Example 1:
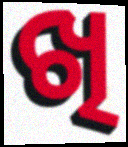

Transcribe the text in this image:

ଖି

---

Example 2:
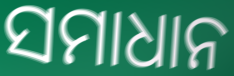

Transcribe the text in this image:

ସମାଧାନ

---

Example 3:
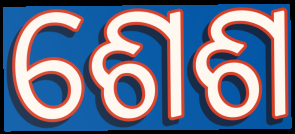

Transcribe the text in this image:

ଶେଶ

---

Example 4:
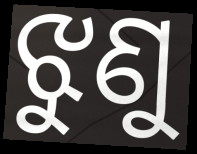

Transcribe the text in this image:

ଝୁଣୁ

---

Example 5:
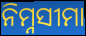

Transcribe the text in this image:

ନିମ୍ନସୀମା